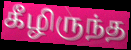
கீழிருந்த